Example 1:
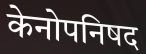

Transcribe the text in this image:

केनोपनिषद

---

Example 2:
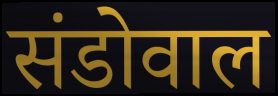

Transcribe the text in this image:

संडोवाल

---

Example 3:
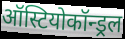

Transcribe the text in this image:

ऑस्टियोकॉन्ड्रल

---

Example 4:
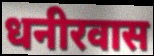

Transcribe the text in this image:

धनीरवास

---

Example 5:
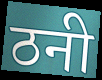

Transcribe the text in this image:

ठनी